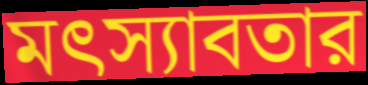
মৎস্যাবতার